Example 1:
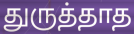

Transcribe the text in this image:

துருத்தாத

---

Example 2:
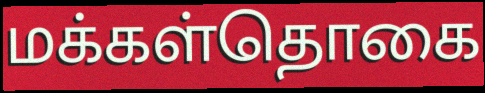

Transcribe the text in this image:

மக்கள்தொகை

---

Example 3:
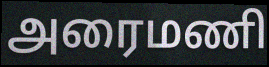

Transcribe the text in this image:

அரைமணி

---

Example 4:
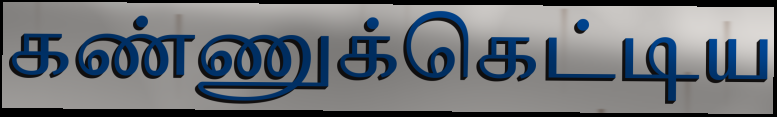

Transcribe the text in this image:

கண்ணுக்கெட்டிய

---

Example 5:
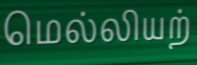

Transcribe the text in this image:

மெல்லியற்